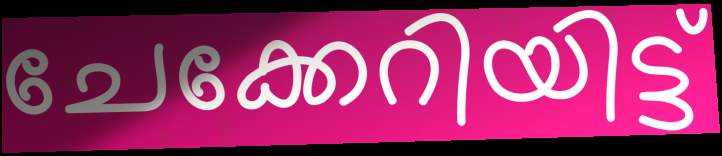
ചേക്കേറിയിട്ട്